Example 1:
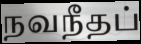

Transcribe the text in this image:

நவநீதப்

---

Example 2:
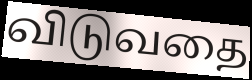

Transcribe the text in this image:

விடுவதை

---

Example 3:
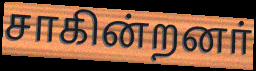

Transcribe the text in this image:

சாகின்றனர்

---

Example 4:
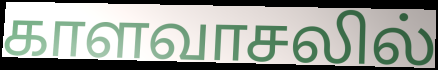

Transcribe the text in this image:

காளவாசலில்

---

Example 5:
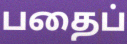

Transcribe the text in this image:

பதைப்